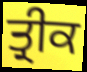
ਤ੍ਰੀਕ